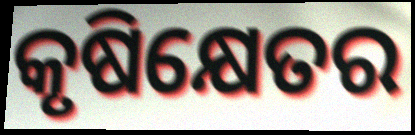
କୃଷିକ୍ଷେତର